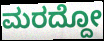
ಮರದ್ದೋ